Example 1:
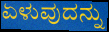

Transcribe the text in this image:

ಏಳುವುದನ್ನು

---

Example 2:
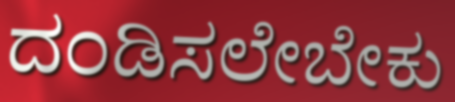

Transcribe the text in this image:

ದಂಡಿಸಲೇಬೇಕು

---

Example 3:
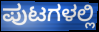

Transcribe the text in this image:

ಪುಟಗಳಲ್ಲಿ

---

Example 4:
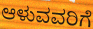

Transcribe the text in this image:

ಆಳುವವರಿಗೆ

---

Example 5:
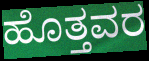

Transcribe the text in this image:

ಹೊತ್ತವರ